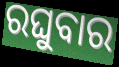
ରଘୁବାର